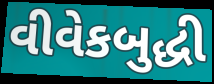
વીવેકબુદ્ધી